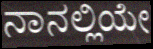
ನಾನಲ್ಲಿಯೇ